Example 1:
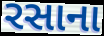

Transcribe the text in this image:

રસાના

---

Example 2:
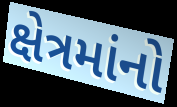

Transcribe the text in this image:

ક્ષેત્રમાંનો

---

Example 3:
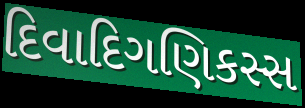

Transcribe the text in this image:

દિવાદિગણિકસ્સ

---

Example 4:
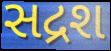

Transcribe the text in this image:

સદ્રશ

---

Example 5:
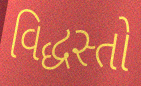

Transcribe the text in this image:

વિદ્ધસ્તો